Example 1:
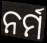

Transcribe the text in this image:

ନର୍ମ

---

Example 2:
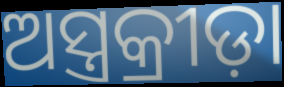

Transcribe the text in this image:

ଅସ୍ତ୍ରକ୍ରୀଡ଼ା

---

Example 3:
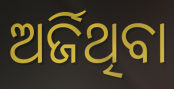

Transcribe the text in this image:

ଅର୍ଜିଥିବା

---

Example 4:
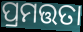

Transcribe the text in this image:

ପ୍ରମତ୍ତତା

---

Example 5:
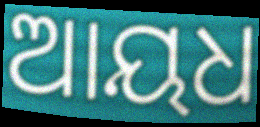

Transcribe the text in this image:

ଆୟଧ